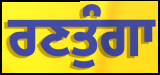
ਰਣਤੁੰਗਾ